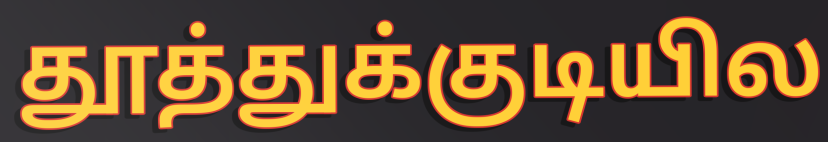
தூத்துக்குடியில